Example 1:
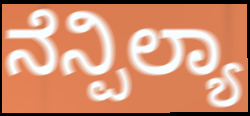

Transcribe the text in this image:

ನೆನ್ಪಿಲ್ಯಾ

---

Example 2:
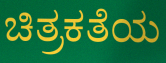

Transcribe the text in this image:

ಚಿತ್ರಕತೆಯ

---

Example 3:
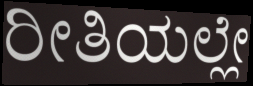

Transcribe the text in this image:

ರೀತಿಯಲ್ಲೇ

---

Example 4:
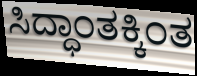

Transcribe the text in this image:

ಸಿದ್ಧಾಂತಕ್ಕಿಂತ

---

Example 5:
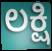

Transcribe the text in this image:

ಲಕ್ಷಿ